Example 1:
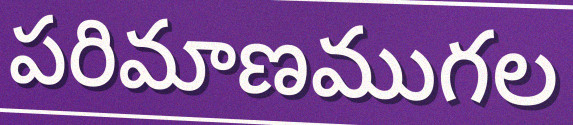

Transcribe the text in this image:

పరిమాణముగల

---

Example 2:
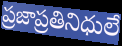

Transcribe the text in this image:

ప్రజాప్రతినిధులే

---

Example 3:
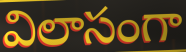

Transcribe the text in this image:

విలాసంగా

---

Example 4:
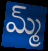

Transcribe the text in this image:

మ్మ్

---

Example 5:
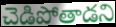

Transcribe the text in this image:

చెడిపోతాడని